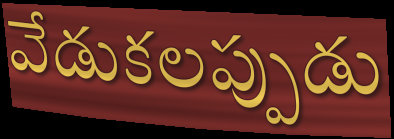
వేడుకలప్పుడు